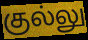
குல்லு